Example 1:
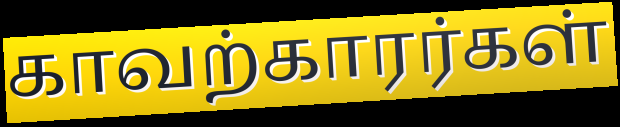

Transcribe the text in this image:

காவற்காரர்கள்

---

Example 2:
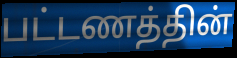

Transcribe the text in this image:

பட்டணத்தின்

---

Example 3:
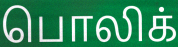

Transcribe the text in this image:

பொலிக்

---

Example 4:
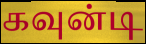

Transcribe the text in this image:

கவுன்டி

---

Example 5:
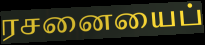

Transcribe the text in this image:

ரசனையைப்